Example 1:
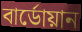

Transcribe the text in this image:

বার্ডোয়ান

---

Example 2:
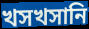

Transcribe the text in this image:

খসখসানি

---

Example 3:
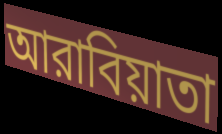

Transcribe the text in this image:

আরাবিয়াতা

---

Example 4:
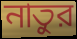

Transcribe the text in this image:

নাতুর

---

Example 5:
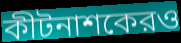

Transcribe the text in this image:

কীটনাশকেরও